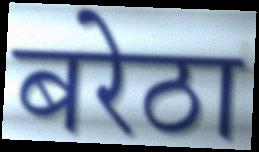
बरेठा